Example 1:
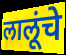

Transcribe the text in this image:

लालूंचे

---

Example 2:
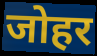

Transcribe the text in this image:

जोहर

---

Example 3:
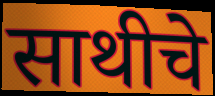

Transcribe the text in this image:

साथीचे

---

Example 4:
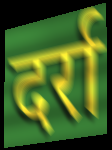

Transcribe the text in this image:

दर्रा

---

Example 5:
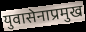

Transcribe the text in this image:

युवासेनाप्रमुख